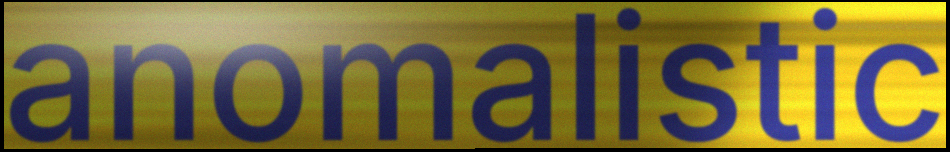
anomalistic